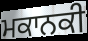
ਮਕਾਨਕੀ